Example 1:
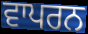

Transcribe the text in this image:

ਵਾਪਰਨ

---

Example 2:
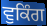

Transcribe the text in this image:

ਵੁਕਿੰਗ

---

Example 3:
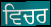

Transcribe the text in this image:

ਵਿਚਰ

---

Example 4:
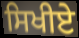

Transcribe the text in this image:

ਸਿਖੀਏ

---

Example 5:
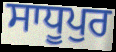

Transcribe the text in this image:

ਸਾਧੂਪੁਰ